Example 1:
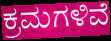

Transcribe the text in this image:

ಕ್ರಮಗಳಿವೆ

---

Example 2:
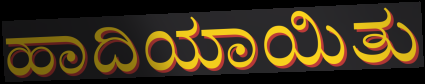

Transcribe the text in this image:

ಹಾದಿಯಾಯಿತು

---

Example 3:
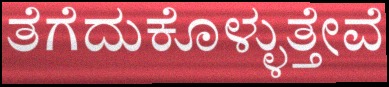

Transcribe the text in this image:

ತೆಗೆದುಕೊಳ್ಳುತ್ತೇವೆ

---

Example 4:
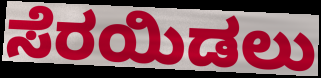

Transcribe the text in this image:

ಸೆರಯಿಡಲು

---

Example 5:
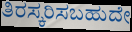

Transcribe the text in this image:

ತಿರಸ್ಕರಿಸಬಹುದೇ